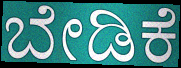
ಬೇಡಿಕೆ